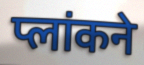
प्लांकने